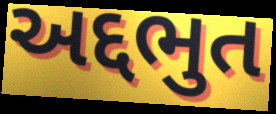
અદ્દભુત